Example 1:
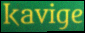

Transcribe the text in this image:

kavige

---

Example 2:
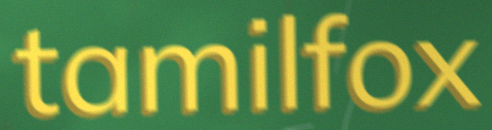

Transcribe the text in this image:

tamilfox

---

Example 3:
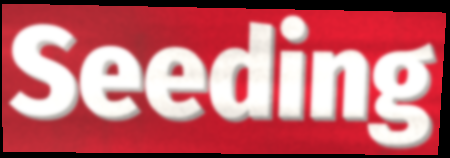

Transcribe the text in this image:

Seeding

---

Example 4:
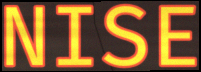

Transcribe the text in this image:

NISE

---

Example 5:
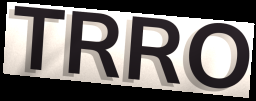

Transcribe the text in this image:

TRRO